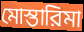
মোস্তারিমা